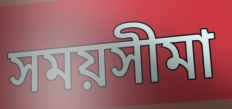
সময়সীমা